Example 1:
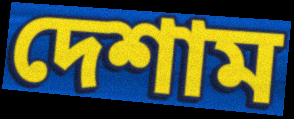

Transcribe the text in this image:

দেশাম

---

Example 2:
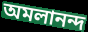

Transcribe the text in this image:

অমলানন্দ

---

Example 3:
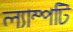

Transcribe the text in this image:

ল্যাম্পটি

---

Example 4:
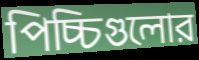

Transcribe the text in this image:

পিচ্চিগুলোর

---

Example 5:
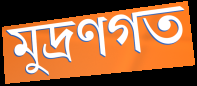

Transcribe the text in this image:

মুদ্রণগত